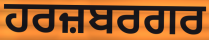
ਹਰਜ਼ਬਰਗਰ